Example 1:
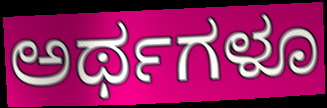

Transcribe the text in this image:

ಅರ್ಥಗಳೂ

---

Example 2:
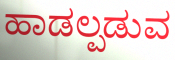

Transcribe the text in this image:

ಹಾಡಲ್ಪಡುವ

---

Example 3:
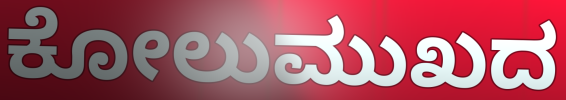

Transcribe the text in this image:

ಕೋಲುಮುಖದ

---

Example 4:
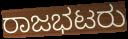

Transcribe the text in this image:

ರಾಜಭಟರು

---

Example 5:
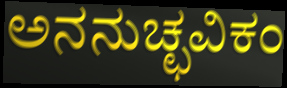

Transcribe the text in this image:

ಅನನುಚ್ಛವಿಕಂ